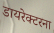
डायरेक्टरना